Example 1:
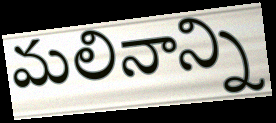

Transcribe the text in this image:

మలినాన్ని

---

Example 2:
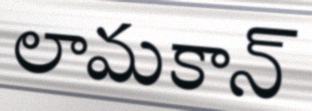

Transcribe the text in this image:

లామకాన్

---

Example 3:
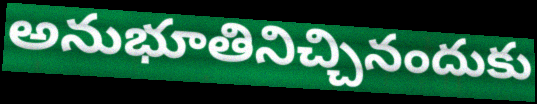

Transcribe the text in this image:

అనుభూతినిచ్చినందుకు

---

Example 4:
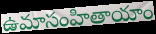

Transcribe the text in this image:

ఉమాసంహితాయాం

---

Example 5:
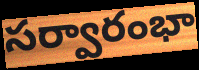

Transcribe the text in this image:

సర్వారంభా